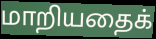
மாறியதைக்